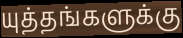
யுத்தங்களுக்கு